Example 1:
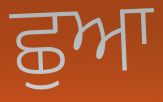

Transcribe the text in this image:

ਛੁਆ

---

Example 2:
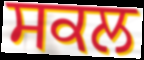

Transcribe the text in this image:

ਸਕਲ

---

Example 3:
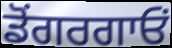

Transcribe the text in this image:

ਡੋਂਗਰਗਾਓਂ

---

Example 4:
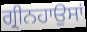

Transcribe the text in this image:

ਗ੍ਰੀਨਹਾਉਸਾਂ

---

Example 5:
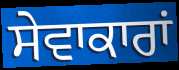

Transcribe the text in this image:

ਸੇਵਾਕਾਰਾਂ